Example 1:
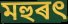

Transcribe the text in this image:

মহুৰৎ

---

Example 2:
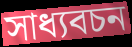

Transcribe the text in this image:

সাধ্যবচন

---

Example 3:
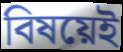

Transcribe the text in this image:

বিষয়েই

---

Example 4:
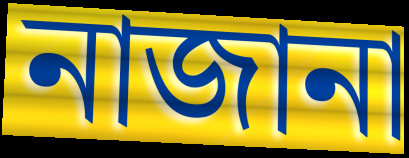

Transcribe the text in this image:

নাজানা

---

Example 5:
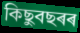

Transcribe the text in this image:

কিছুবছৰৰ